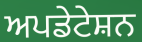
ਅਪਡੇਟੇਸ਼ਨ